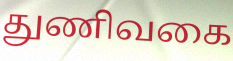
துணிவகை